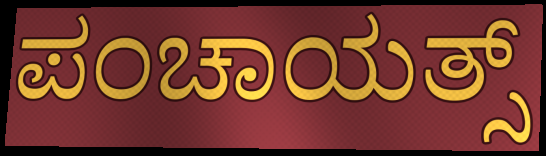
ಪಂಚಾಯತ್ಸ್